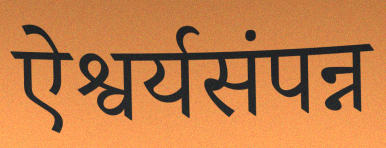
ऐश्वर्यसंपन्न